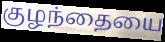
குழந்தையை